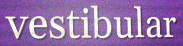
vestibular